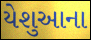
યેશુઆના